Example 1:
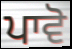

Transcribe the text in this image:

ਪਾਵੋ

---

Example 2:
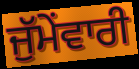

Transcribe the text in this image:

ਜੁੱਮੇਂਵਾਰੀ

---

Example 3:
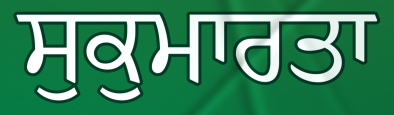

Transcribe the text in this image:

ਸੁਕੁਮਾਰਤਾ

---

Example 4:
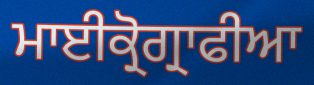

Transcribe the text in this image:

ਮਾਈਕ੍ਰੋਗ੍ਰਾਫੀਆ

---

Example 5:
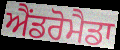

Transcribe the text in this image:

ਐਂਡਰੋਮੈਡਾ